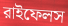
রাইফেলস